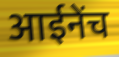
आईनेंच